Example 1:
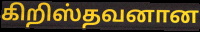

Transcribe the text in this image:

கிறிஸ்தவனான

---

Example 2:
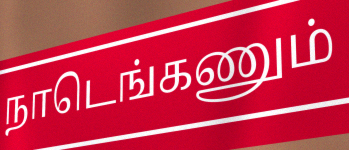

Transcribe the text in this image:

நாடெங்கணும்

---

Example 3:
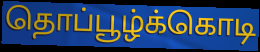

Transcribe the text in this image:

தொப்பூழ்க்கொடி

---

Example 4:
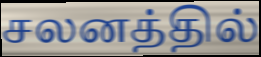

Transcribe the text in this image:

சலனத்தில்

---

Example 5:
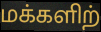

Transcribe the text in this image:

மக்களிற்